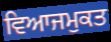
ਵਿਆਜਮੁਕਤ